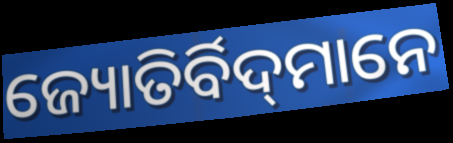
ଜ୍ୟୋତିର୍ବିଦ୍‌ମାନେ